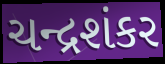
ચન્દ્રશંકર